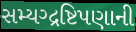
સમ્યગ્દ્રષ્ટિપણાની